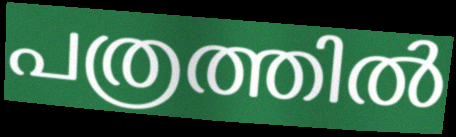
പത്രത്തിൽ